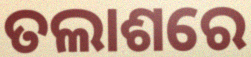
ତଲାଶରେ